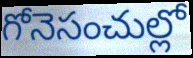
గోనెసంచుల్లో